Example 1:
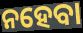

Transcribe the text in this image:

ନହେବା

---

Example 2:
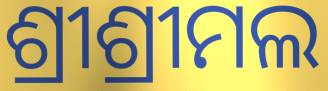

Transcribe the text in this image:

ଶ୍ରୀଶ୍ରୀମଲ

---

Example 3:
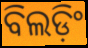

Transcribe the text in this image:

ବିଲଡ଼ିଂ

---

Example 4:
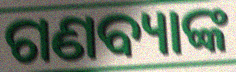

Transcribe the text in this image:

ଗଣବ୍ୟାଙ୍କ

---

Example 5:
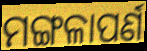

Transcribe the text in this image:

ମଙ୍ଗଳାପର୍ଣ